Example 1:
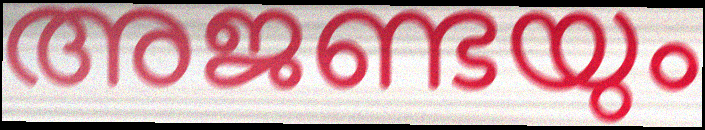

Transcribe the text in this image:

അജണ്ടയും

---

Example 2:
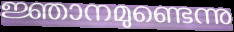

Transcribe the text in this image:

ജ്ഞാനമുണ്ടെന്നു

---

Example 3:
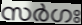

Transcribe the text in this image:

സർഗഃ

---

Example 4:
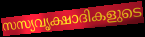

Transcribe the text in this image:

സസ്യവൃക്ഷാദികളുടെ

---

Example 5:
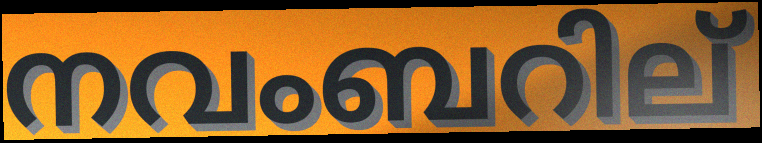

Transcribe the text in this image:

നവംബറില്